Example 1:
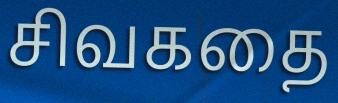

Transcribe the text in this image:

சிவகதை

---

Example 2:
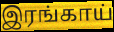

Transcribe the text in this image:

இரங்காய்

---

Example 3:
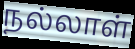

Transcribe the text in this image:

நல்லாள்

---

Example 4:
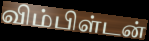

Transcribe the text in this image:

விம்பிள்டன்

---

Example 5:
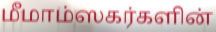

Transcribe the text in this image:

மீமாம்ஸகர்களின்